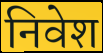
निवेश